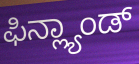
ಫಿನ್ಲ್ಯಾಂಡ್